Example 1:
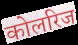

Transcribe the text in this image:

कोलरिज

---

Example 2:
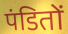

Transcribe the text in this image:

पंडितों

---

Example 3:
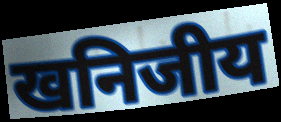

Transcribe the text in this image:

खनिजीय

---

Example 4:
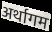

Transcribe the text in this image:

अर्थागम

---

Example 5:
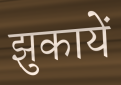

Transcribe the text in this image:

झुकायें